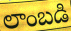
లాంబడి